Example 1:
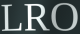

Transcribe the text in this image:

LRO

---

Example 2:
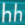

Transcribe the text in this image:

hh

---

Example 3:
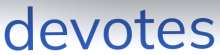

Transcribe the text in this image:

devotes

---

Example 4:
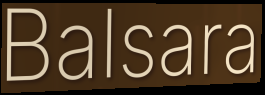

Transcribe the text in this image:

Balsara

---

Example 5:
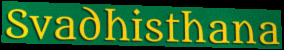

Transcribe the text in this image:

Svadhisthana